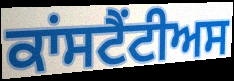
ਕਾਂਸਟੈਂਟੀਅਸ